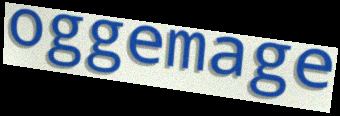
oggemage